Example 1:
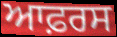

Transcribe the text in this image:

ਆਫ਼ਰਸ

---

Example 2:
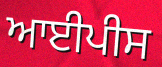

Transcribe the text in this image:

ਆਈਪੀਸ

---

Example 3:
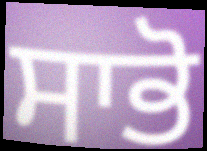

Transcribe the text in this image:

ਸਾਭੋ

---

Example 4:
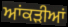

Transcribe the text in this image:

ਆਂਕੜੀਆਂ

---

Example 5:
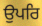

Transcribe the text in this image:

ਉਪਰਿ